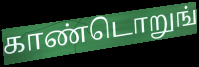
காண்டொறுங்